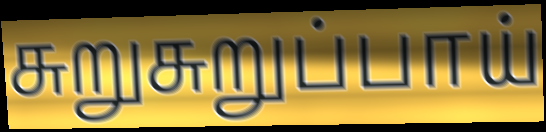
சுறுசுறுப்பாய்